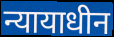
न्यायाधीन